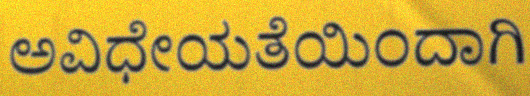
ಅವಿಧೇಯತೆಯಿಂದಾಗಿ